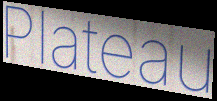
Plateau